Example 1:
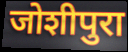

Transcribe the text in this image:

जोशीपुरा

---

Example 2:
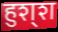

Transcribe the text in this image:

हुश्श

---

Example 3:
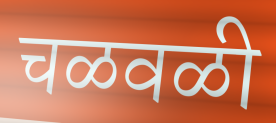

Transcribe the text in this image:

चळवळी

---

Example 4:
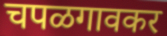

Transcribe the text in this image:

चपळगावकर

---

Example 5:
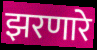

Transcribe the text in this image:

झरणारे